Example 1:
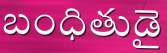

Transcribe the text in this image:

బంధితుడై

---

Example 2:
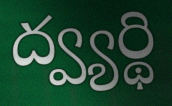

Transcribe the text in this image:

ద్వ్యర్థి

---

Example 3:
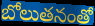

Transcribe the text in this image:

బోలుతనంతో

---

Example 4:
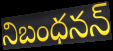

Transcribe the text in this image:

నిబంధనన్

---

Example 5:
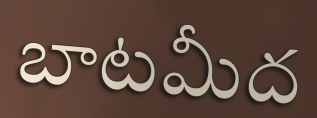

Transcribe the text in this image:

బాటమీద